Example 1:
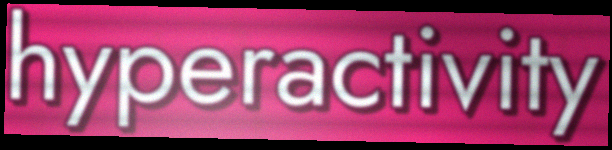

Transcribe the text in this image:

hyperactivity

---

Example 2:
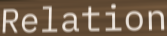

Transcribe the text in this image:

Relation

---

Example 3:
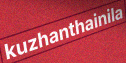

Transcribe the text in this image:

kuzhanthainila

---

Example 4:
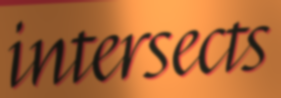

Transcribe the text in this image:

intersects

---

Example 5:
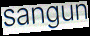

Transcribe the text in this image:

sangun